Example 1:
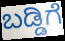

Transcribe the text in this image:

ಬಡ್ಡಿಗೆ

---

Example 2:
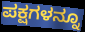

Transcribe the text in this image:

ಪಕ್ಷಗಳನ್ನೂ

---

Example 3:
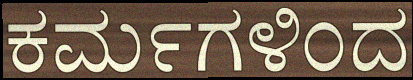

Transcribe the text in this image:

ಕರ್ಮಗಳಿಂದ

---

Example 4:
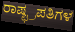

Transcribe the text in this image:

ರಾಷ್ಟ್ರಪತಿಗಳ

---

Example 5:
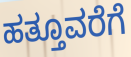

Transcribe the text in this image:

ಹತ್ತೂವರೆಗೆ